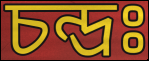
চন্দ্রঃ